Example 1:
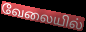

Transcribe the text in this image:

வேலையில்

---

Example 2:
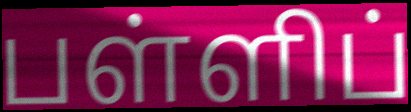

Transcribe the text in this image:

பள்ளிப்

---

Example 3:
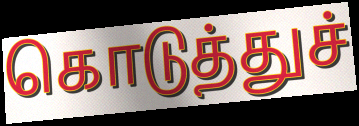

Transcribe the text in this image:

கொடுத்துச்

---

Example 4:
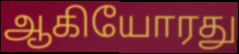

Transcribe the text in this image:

ஆகியோரது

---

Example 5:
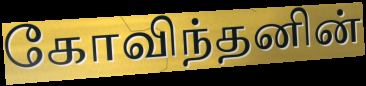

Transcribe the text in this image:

கோவிந்தனின்